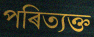
পৰিত্যক্ত